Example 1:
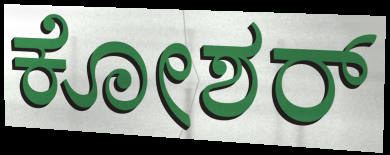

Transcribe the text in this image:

ಕೋಶರ್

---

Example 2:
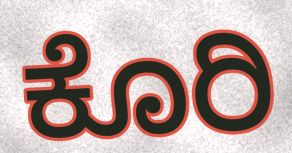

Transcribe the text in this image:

ಕೊರಿ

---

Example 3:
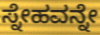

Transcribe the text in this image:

ಸ್ನೇಹವನ್ನೇ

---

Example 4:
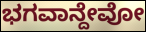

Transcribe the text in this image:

ಭಗವಾನ್ದೇವೋ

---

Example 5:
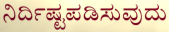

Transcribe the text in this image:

ನಿರ್ದಿಷ್ಟಪಡಿಸುವುದು